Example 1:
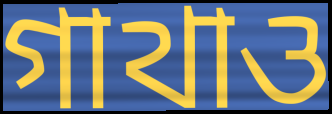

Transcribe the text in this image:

গাথাও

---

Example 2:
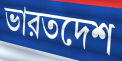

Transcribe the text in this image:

ভারতদেশ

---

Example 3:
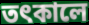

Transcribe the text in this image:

তৎকালে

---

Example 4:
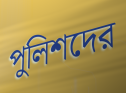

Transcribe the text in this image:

পুলিশদের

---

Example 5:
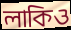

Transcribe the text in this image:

লাকিও